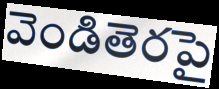
వెండితెరపై